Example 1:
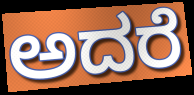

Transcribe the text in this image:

ಅದರೆ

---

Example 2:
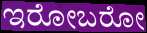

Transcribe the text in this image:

ಇರೋಬರೋ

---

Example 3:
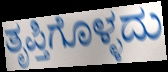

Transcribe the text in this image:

ತೃಪ್ತಿಗೊಳ್ಳದು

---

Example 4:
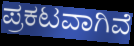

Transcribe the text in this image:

ಪ್ರಕಟವಾಗಿವೆ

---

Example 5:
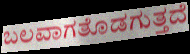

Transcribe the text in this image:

ಬಲವಾಗತೊಡಗುತ್ತದೆ